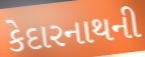
કેદારનાથની